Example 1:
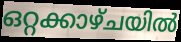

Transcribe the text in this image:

ഒറ്റക്കാഴ്ചയിൽ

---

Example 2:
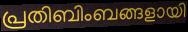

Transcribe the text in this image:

പ്രതിബിംബങ്ങളായി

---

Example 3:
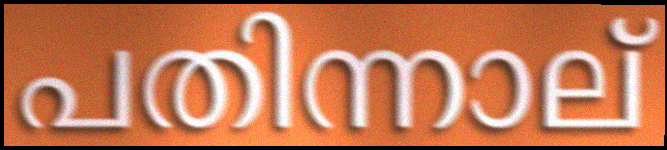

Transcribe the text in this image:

പതിന്നാല്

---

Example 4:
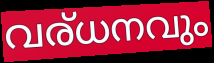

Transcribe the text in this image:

വര്ധനവും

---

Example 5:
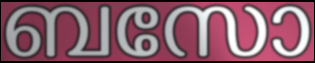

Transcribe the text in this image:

ബസോ